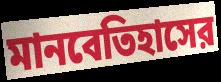
মানবেতিহাসের